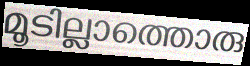
മൂടില്ലാത്തൊരു